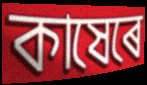
কাষেৰে